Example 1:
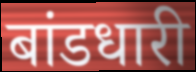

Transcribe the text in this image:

बांडधारी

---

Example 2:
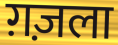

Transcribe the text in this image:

ग़ज़ला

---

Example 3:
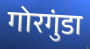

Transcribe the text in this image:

गोरगुंडा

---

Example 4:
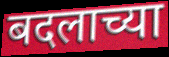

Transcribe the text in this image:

बदलाच्या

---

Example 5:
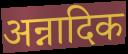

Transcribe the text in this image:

अन्नादिक